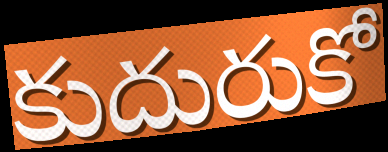
కుదురుకో